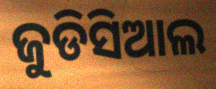
ଜୁଡିସିଆଲ